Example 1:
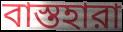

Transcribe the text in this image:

বাস্তহারা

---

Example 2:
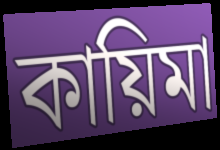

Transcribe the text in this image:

কায়িমা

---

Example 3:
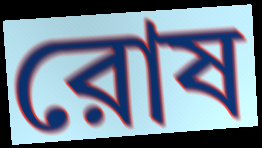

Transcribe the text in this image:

রোষ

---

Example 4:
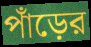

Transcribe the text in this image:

পাঁড়ের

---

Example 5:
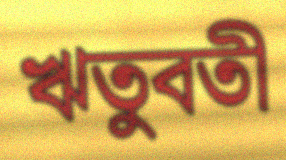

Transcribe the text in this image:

ঋতুবতী